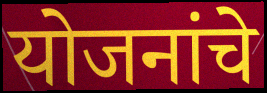
योजनांचे